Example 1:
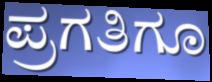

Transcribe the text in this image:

ಪ್ರಗತಿಗೂ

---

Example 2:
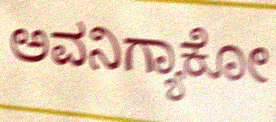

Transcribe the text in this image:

ಅವನಿಗ್ಯಾಕೋ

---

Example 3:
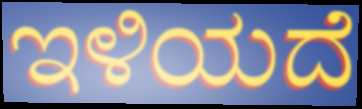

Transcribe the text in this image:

ಇಳಿಯದೆ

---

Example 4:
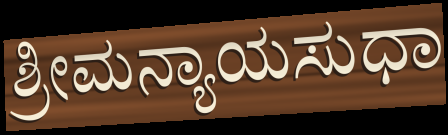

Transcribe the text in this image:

ಶ್ರೀಮನ್ಯಾಯಸುಧಾ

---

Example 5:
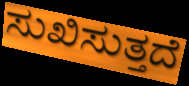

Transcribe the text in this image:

ಸುಖಿಸುತ್ತದೆ